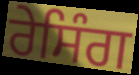
ਰੇਸਿੰਗ